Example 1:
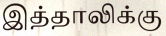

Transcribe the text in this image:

இத்தாலிக்கு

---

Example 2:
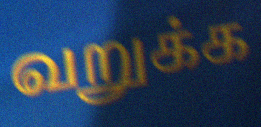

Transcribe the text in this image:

வறுக்க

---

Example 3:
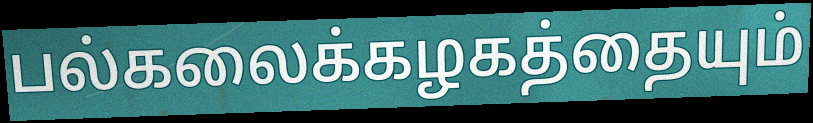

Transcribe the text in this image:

பல்கலைக்கழகத்தையும்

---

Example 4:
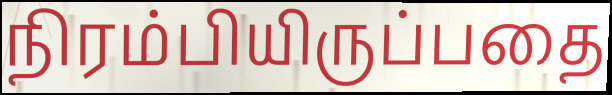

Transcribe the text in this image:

நிரம்பியிருப்பதை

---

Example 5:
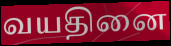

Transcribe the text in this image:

வயதினை